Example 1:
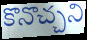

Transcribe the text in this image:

కొనొచ్చని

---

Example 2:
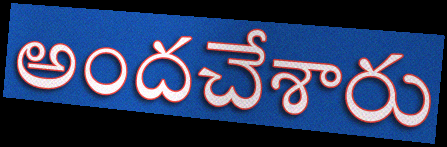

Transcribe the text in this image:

అందచేశారు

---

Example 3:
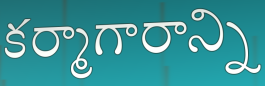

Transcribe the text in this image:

కర్మాగారాన్ని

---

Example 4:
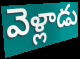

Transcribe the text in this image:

వెళ్లాడు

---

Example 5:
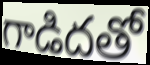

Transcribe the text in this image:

గాడిదతో